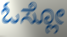
ಓಸ್ಲೋ